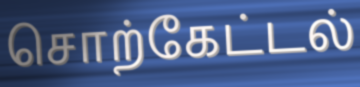
சொற்கேட்டல்